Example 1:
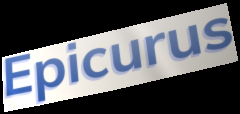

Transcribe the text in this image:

Epicurus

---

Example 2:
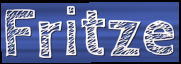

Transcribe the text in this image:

Fritze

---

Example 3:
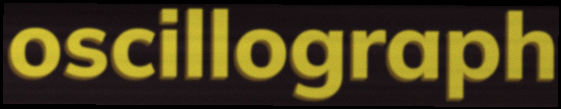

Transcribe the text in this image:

oscillograph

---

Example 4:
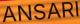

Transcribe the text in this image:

ANSARI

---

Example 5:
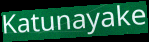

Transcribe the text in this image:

Katunayake